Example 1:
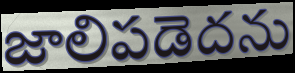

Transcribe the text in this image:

జాలిపడెదను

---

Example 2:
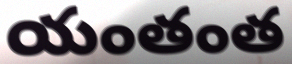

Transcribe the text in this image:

యంతంత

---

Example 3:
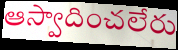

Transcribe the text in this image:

ఆస్వాదించలేరు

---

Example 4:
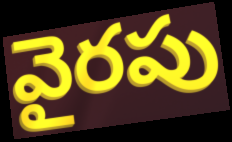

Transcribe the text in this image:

వైరపు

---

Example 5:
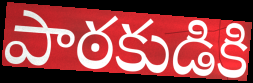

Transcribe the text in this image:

పాఠకుడికి